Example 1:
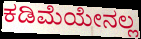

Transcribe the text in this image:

ಕಡಿಮೆಯೇನಲ್ಲ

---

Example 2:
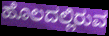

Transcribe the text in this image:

ಹೊಲದಲ್ಲಿರುವ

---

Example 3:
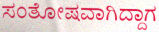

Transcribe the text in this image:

ಸಂತೋಷವಾಗಿದ್ದಾಗ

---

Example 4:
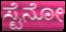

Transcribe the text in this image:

ಸ್ಟೆನೋ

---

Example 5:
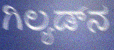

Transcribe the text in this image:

ಗಿಲ್ಯಡ್‌ನ